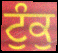
ਟੁੰਕੁ